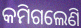
କମିଗଲେଣି